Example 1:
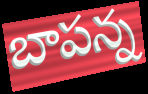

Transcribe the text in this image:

బాపన్న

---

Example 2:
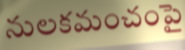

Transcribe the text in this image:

నులకమంచంపై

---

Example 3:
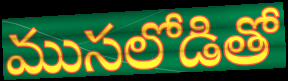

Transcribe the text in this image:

ముసలోడితో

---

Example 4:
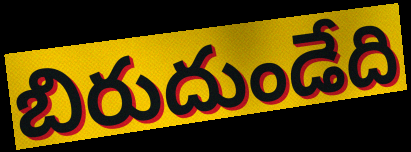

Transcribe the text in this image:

బిరుదుండేది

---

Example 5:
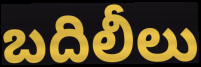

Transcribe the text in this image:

బదిలీలు